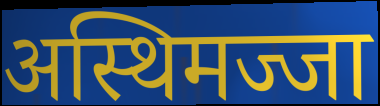
अस्थिमज्जा